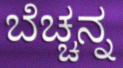
ಬೆಚ್ಚನ್ನ